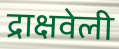
द्राक्षवेली